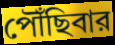
পৌঁছিবার